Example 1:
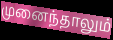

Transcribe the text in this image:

முனைந்தாலும்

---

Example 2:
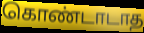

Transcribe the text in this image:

கொண்டாடாத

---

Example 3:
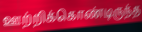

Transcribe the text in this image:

ஊற்றிக்கொண்டிருந்த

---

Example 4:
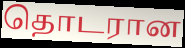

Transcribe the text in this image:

தொடரான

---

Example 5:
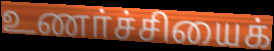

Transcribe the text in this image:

உணர்ச்சியைக்